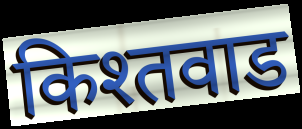
किश्तवाड